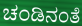
ಚಂಡಿನಂತೆ